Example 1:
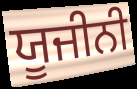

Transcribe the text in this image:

ਯੂਜੀਨੀ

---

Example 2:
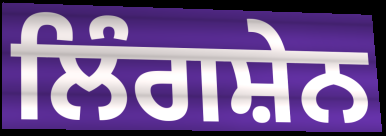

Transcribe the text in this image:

ਲਿੰਗਸ਼ੇਨ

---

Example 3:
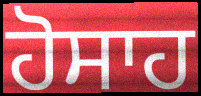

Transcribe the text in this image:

ਹੋਸਾਹ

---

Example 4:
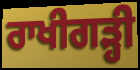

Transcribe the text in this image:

ਰਾਖੀਗੜ੍ਹੀ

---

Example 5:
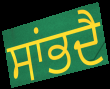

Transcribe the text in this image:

ਸਾਂਭਦੈ